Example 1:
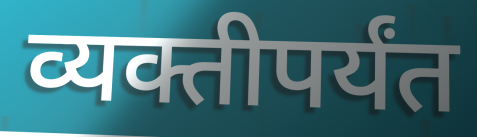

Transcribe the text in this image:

व्यक्तीपर्यंत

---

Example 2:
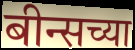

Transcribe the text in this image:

बीन्सच्या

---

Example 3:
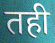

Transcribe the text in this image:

तही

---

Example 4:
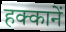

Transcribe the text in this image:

हक्कानें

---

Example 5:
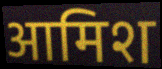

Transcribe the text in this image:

आमिश